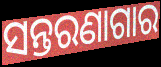
ସନ୍ତରଣାଗାର